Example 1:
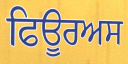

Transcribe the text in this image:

ਫਿਊਰਅਸ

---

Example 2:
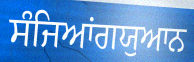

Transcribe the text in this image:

ਸੰਜਿਆਂਗਯੁਆਨ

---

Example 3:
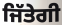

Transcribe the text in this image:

ਜਿੱਤੇਗੀ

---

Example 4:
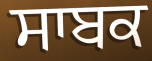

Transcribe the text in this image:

ਸਾਬਕ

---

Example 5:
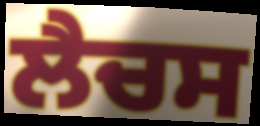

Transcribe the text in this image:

ਲੈਚਸ